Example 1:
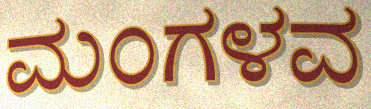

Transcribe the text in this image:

ಮಂಗಳವ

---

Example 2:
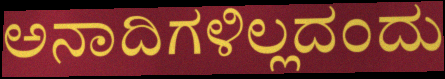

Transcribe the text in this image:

ಅನಾದಿಗಳಿಲ್ಲದಂದು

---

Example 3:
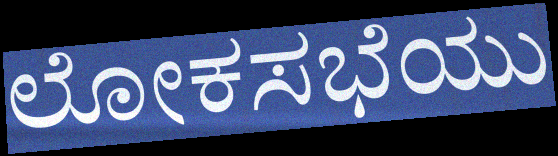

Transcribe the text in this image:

ಲೋಕಸಭೆಯು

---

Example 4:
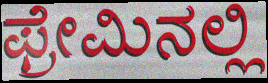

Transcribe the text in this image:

ಫ್ರೇಮಿನಲ್ಲಿ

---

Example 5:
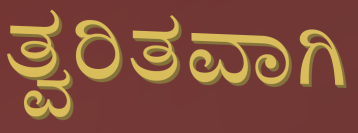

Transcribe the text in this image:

ತ್ವರಿತವಾಗಿ